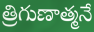
త్రిగుణాత్మనే